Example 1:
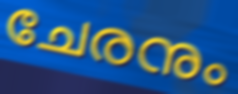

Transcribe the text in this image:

ചേരനും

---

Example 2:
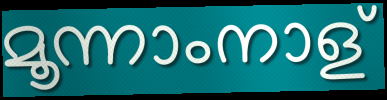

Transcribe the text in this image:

മൂന്നാംനാള്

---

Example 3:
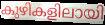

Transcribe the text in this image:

കുഴികളിലായി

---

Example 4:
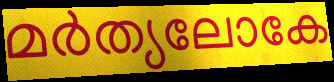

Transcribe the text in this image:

മർത്യലോകേ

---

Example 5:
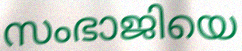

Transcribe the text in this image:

സംഭാജിയെ